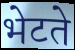
भेटते